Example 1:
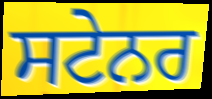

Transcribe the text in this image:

ਸਟੇਨਰ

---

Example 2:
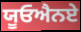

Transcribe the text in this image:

ਯੂਓਐਨਏ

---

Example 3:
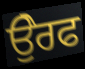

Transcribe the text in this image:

ਉੇਰਫ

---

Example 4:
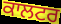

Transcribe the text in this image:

ਕਾਲਟਰ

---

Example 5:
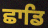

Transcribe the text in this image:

ਛਾਡਿ